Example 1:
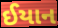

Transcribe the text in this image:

ઈયાન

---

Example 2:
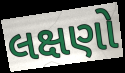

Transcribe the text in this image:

લક્ષણો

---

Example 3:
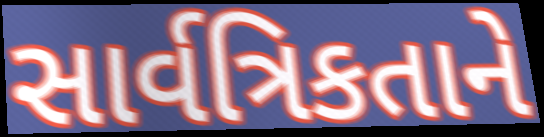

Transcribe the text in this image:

સાર્વત્રિકતાને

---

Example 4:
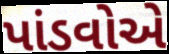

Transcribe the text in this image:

પાંડવોએ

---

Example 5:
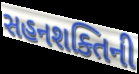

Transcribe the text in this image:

સહનશક્તિની